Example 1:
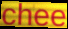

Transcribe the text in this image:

chee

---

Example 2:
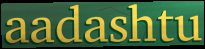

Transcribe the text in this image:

aadashtu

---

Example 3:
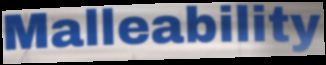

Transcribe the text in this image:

Malleability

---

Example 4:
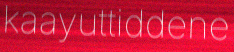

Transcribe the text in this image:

kaayuttiddene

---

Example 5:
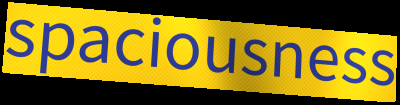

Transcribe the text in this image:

spaciousness